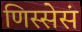
णिस्सेसं